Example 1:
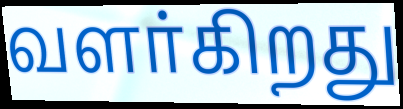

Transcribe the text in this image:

வளர்கிறது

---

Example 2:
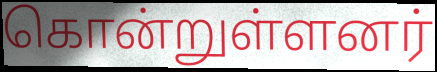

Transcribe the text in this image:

கொன்றுள்ளனர்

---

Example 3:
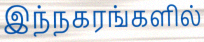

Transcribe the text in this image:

இந்நகரங்களில்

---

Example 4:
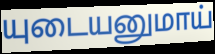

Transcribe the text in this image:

யுடையனுமாய்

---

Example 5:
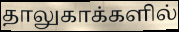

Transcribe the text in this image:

தாலுகாக்களில்